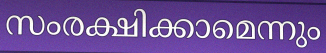
സംരക്ഷിക്കാമെന്നും